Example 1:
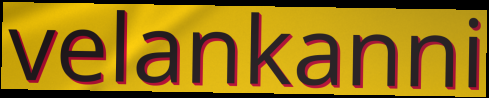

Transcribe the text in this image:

velankanni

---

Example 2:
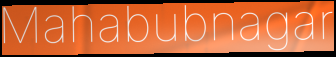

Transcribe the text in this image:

Mahabubnagar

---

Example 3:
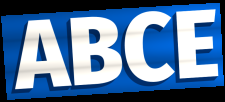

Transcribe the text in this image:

ABCE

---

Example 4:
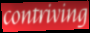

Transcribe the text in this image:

contriving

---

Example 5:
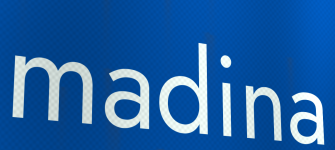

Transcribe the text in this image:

madina